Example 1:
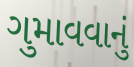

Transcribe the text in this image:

ગુમાવવાનું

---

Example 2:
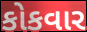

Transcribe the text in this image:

કોકવાર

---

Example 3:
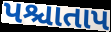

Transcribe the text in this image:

પશ્ચાતાપ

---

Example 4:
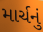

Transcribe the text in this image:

માર્ચનું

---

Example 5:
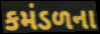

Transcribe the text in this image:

કમંડળના